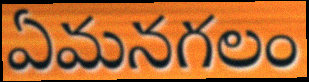
ఏమనగలం